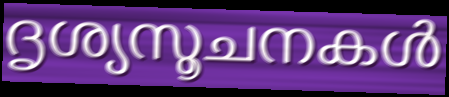
ദൃശ്യസൂചനകൾ